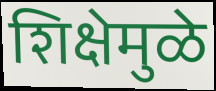
शिक्षेमुळे